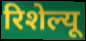
रिशेल्यू